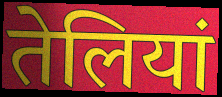
तेलियां